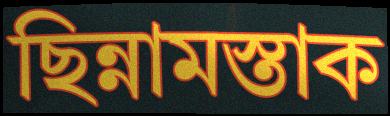
ছিন্নামস্তাক